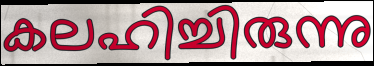
കലഹിച്ചിരുന്നു